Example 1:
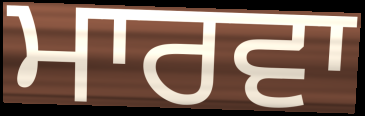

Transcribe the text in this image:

ਮਾਰਵਾ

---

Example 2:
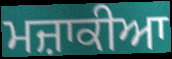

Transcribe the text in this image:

ਮਜ਼ਾਕੀਆ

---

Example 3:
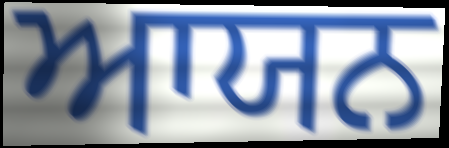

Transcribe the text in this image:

ਆਯਨ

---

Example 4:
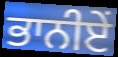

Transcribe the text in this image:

ਭਾਨੀਏਂ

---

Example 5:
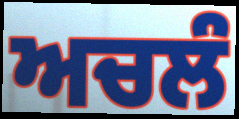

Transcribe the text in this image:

ਅਚਲੰ